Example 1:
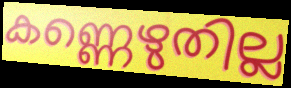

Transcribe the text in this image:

കണ്ണെഴുതില്ല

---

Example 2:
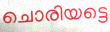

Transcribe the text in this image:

ചൊരിയട്ടെ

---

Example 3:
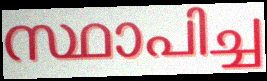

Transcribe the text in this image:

സ്ഥാപിച്ച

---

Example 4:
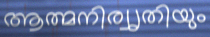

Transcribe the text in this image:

ആത്മനിര്വൃതിയും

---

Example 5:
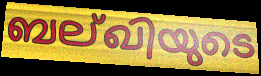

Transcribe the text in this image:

ബല്ഖിയുടെ